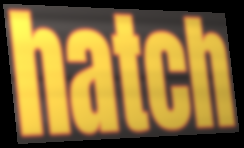
hatch